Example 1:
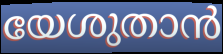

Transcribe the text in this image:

യേശുതാൻ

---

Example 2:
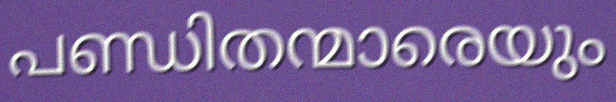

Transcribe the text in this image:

പണ്ഡിതന്മാരെയും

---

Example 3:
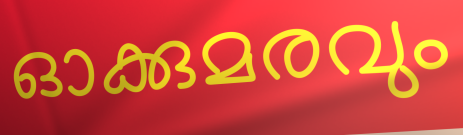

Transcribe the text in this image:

ഓക്കുമരവും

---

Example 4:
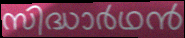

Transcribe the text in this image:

സിദ്ധാർഥൻ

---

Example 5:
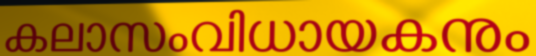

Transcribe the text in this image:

കലാസംവിധായകനും